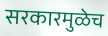
सरकारमुळेच